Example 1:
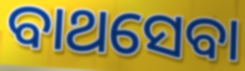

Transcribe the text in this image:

ବାଥସେବା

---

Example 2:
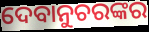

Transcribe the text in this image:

ଦେବାନୁଚରଙ୍କର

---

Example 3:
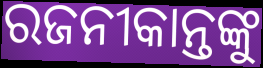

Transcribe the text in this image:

ରଜନୀକାନ୍ତଙ୍କୁ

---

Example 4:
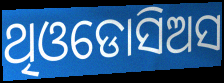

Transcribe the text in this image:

ଥିଓଡୋସିଅସ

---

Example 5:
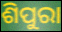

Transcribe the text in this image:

ଶିପୁରା